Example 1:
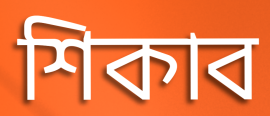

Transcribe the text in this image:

শিকাব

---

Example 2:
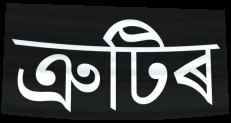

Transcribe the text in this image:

ত্ৰুটিৰ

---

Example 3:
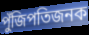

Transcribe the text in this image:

পুঁজিপতিজনক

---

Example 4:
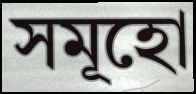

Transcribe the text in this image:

সমূহো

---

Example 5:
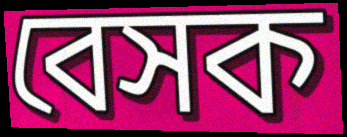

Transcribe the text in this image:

বেসক